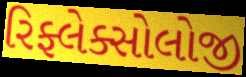
રિફ્લેક્સોલોજી